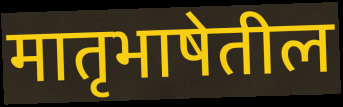
मातृभाषेतील